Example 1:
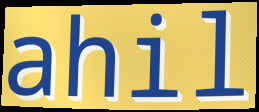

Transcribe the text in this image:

ahil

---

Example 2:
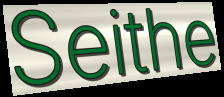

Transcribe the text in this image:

Seithe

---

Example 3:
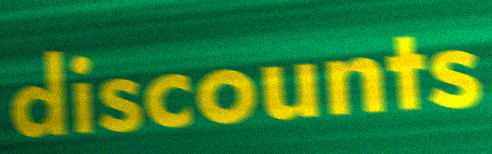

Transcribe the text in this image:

discounts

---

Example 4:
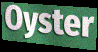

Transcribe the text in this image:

Oyster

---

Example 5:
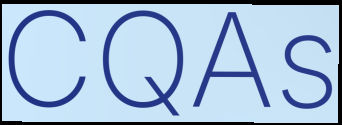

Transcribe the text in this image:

CQAs